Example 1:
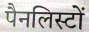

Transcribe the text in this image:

पैनलिस्टों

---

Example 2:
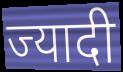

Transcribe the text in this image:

ज्यादी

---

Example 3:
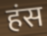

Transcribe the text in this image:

हंस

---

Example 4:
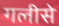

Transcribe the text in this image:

गलीसे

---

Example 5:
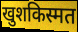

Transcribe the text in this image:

खुशकिस्मत